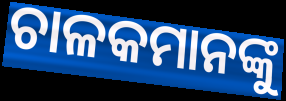
ଚାଳକମାନଙ୍କୁ